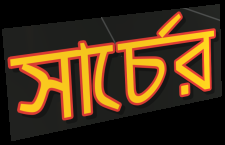
সার্চের